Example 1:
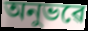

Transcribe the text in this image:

অনুভৱে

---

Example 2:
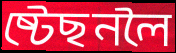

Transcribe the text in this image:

ষ্টেছনলৈ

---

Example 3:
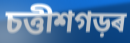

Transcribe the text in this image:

চত্তীশগড়ৰ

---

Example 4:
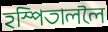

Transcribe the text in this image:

হস্পিতাললৈ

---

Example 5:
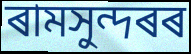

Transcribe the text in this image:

ৰামসুন্দৰৰ